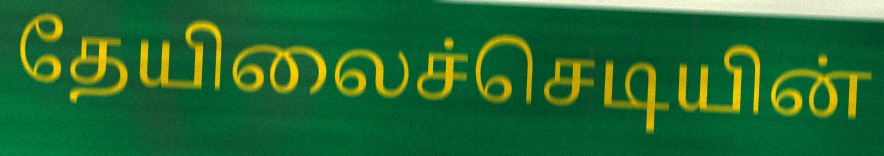
தேயிலைச்செடியின்